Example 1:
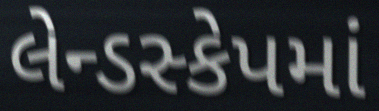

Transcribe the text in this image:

લેન્ડસ્કેપમાં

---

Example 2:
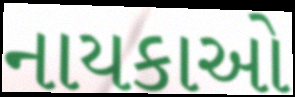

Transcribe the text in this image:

નાયકાઓ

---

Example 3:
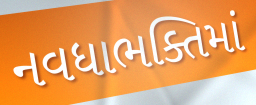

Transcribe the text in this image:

નવધાભક્તિમાં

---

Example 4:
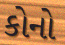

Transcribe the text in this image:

કોનો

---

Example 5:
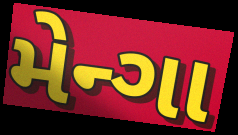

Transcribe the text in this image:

મેન્ગા